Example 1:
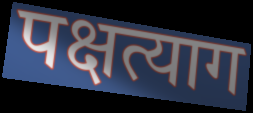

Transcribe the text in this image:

पक्षत्याग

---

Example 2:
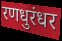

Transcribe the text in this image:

रणधुरंधर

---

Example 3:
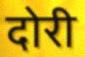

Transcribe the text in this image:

दोरी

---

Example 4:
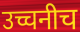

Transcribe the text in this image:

उच्चनीच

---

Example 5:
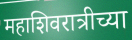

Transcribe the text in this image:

महाशिवरात्रीच्या